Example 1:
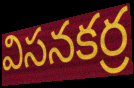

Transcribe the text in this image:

విసనకర్ర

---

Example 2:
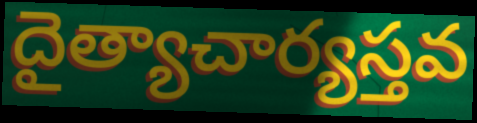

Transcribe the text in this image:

దైత్యాచార్యస్తవ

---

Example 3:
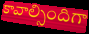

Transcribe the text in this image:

కావాల్సిందిగా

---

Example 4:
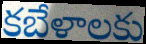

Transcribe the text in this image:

కబేళాలకు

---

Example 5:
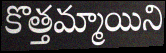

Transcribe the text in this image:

కొత్తమ్మాయిని